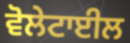
ਵੋਲੇਟਾਈਲ